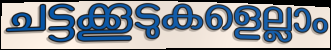
ചട്ടക്കൂടുകളെല്ലാം